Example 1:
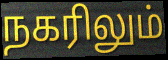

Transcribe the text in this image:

நகரிலும்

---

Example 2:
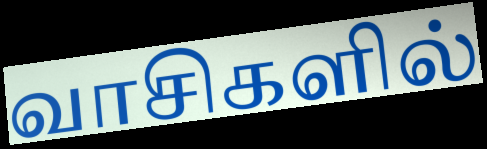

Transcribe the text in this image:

வாசிகளில்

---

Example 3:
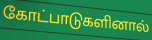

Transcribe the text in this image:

கோட்பாடுகளினால்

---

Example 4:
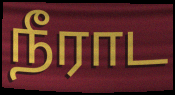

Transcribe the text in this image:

நீராட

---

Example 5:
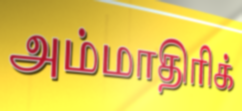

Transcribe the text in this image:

அம்மாதிரிக்